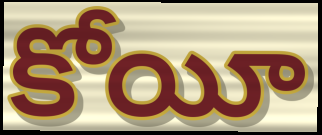
కోయీ